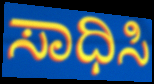
ಸಾಧಿಸಿ